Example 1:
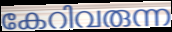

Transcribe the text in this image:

കേറിവരുന്ന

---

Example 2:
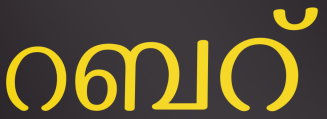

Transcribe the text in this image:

റബറ്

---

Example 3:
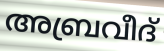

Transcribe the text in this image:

അബ്രവീദ്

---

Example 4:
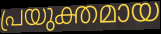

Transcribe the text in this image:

പ്രയുക്തമായ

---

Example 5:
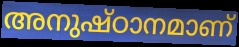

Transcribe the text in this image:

അനുഷ്ഠാനമാണ്